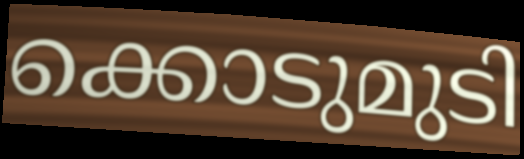
ക്കൊടുമുടി